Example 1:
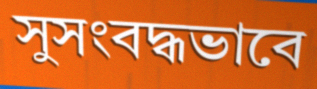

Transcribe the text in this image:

সুসংবদ্ধভাবে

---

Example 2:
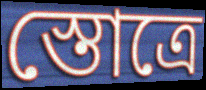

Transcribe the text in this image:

স্তোত্রে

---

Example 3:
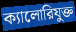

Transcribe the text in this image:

ক্যালোরিযুক্ত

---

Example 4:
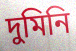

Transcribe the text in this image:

দুমিনি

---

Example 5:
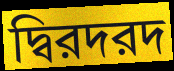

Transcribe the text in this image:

দ্বিরদরদ